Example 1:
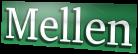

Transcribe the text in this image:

Mellen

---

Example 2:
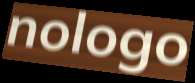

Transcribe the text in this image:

nologo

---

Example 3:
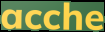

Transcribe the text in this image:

acche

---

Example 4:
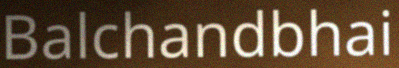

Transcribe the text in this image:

Balchandbhai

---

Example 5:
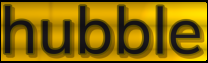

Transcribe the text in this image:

hubble